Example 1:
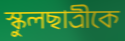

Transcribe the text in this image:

স্কুলছাত্রীকে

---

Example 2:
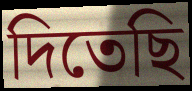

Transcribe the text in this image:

দিতেছি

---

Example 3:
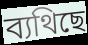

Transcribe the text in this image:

ব্যথিছে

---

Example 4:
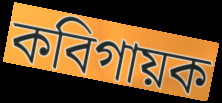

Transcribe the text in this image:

কবিগায়ক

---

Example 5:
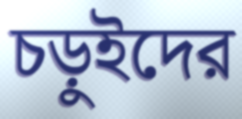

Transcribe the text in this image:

চড়ুইদের